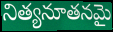
నిత్యనూతనమై